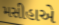
મસીહાએ